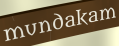
mundakam